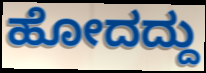
ಹೋದದ್ದು